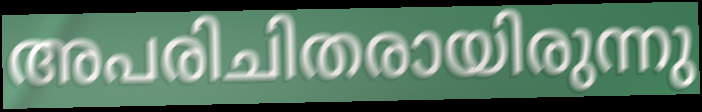
അപരിചിതരായിരുന്നു